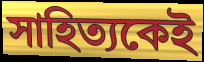
সাহিত্য়কেই